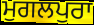
ਮੁਗਲਪੁਰਾ